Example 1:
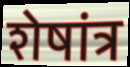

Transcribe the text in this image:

शेषांत्र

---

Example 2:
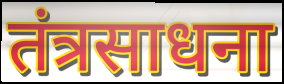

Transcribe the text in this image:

तंत्रसाधना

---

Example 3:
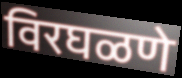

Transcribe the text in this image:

विरघळणे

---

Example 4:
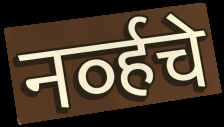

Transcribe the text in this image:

नर्व्हचे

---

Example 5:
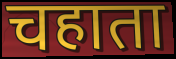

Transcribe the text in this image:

चहाता